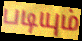
படியும்